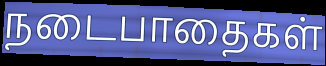
நடைபாதைகள்